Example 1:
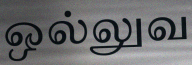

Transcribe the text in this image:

ஒல்லுவ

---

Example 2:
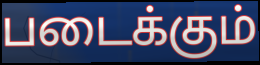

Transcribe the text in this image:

படைக்கும்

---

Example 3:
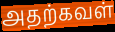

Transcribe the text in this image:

அதற்கவள்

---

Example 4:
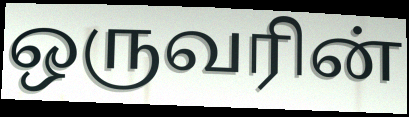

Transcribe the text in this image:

ஒருவரின்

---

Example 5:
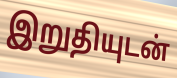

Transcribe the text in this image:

இறுதியுடன்